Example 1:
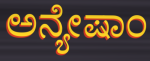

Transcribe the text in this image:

ಅನ್ಯೇಷಾಂ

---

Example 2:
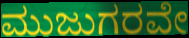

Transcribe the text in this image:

ಮುಜುಗರವೇ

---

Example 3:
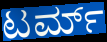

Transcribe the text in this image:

ಟರ್ಮ್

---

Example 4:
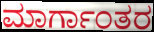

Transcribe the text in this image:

ಮಾರ್ಗಾಂತರ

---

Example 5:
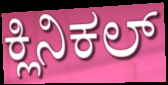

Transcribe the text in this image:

ಕ್ಲಿನಿಕಲ್